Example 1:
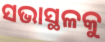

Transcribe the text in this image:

ସଭାସ୍ଥଳକୁ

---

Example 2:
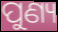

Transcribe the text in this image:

ପୁଣ୍ୟ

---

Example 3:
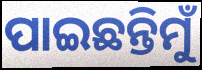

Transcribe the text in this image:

ପାଇଛନ୍ତିମୁଁ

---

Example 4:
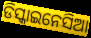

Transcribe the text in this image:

ଡିସ୍କାଇନେସିଆ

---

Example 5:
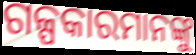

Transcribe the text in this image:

ଗଳ୍ପକାରମାନଙ୍କୁ